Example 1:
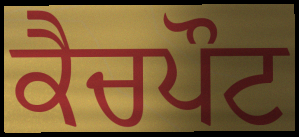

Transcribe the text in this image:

ਕੈਚਪੌਟ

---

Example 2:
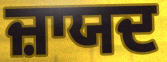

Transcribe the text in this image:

ਜ਼ਾਯਦ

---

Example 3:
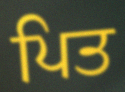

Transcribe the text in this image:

ਪਿਤ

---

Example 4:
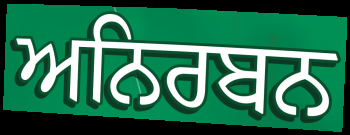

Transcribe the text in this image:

ਅਨਿਰਬਨ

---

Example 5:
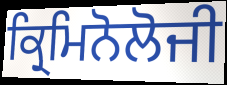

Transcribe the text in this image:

ਕ੍ਰਿਮਿਨੋਲੋਜੀ